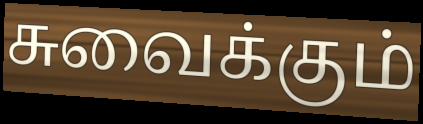
சுவைக்கும்